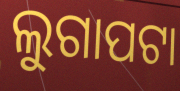
ଲୁଗାପଟା